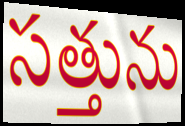
సత్తును